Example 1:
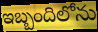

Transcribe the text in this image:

ఇబ్బందిలోను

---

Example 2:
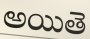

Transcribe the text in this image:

అయితె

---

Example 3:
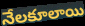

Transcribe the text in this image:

నేలకూలాయి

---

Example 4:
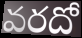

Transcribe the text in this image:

వరదో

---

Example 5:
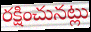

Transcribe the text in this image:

రక్షించునట్లు